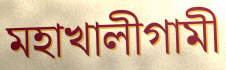
মহাখালীগামী